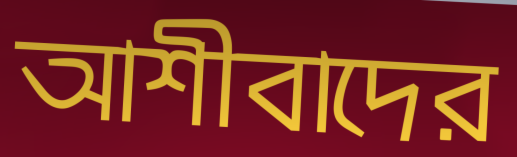
আশীবাদের